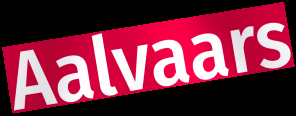
Aalvaars